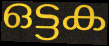
ഒട്ടക